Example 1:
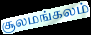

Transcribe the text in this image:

சூலமங்கலம்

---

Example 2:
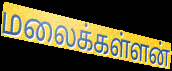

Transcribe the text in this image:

மலைக்கள்ளன்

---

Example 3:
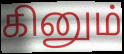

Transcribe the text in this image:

கினும்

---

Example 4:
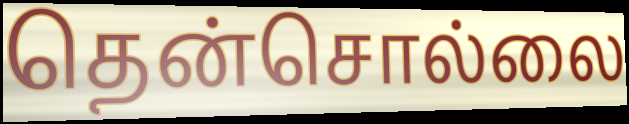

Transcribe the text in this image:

தென்சொல்லை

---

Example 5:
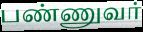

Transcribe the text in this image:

பண்ணுவர்